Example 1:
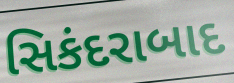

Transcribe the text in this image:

સિકંદરાબાદ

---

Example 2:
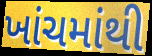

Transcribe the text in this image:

ખાંચમાંથી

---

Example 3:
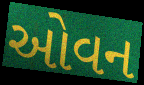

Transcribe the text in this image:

ઓવન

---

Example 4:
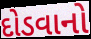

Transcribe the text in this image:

દોડવાનો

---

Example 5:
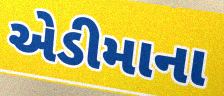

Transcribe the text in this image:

એડીમાના